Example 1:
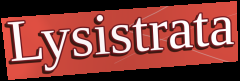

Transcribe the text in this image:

Lysistrata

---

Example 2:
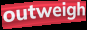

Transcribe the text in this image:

outweigh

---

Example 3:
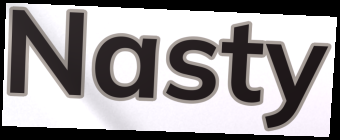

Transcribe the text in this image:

Nasty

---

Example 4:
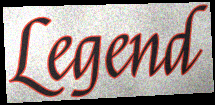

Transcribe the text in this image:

Legend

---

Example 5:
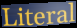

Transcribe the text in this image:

Literal